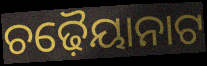
ଚଢ଼ୈୟାନାଟ